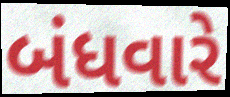
બંધવારે